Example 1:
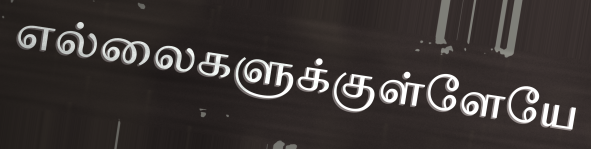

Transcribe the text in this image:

எல்லைகளுக்குள்ளேயே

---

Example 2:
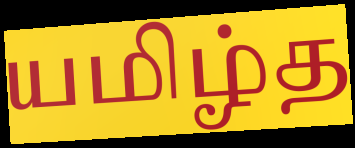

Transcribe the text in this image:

யமிழ்த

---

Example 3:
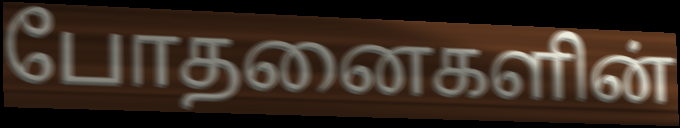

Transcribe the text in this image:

போதனைகளின்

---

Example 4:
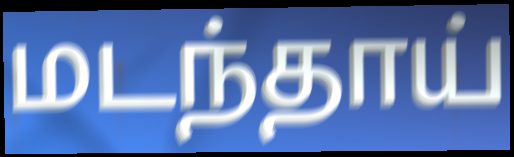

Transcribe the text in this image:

மடந்தாய்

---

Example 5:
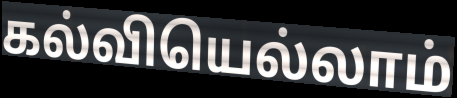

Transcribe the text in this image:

கல்வியெல்லாம்